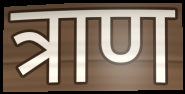
त्राण